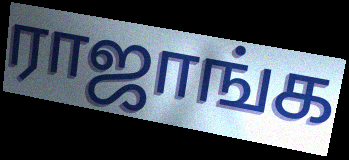
ராஜாங்க